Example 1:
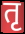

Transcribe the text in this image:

तृ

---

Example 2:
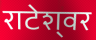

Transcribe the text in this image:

राटेश्वर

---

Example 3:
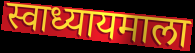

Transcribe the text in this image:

स्वाध्यायमाला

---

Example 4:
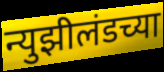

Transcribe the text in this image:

न्युझीलंडच्या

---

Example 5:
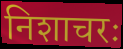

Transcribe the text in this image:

निशाचरः